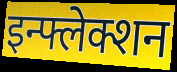
इन्फ्लेक्शन